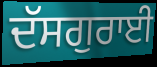
ਦੱਸਗੁਰਾਈ